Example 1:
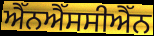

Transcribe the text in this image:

ਐੱਨਐੱਸਸੀਐੱਨ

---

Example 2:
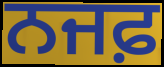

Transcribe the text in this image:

ਨਜਫ਼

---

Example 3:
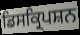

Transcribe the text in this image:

ਡਿਸਕ੍ਰਿਪਸ਼ਨ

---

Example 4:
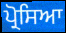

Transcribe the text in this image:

ਪ੍ਰੋਸਿਆ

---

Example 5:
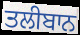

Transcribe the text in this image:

ਤਲੀਬਾਨ